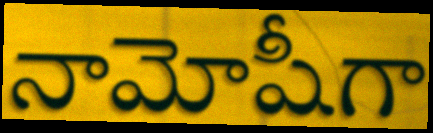
నామోషీగా